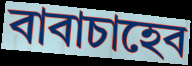
বাবাচাহেব